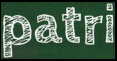
patri